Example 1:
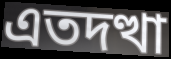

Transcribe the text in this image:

এতদত্থা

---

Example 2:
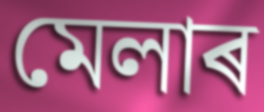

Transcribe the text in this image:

মেলাৰ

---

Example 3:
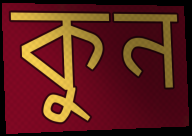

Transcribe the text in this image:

কুন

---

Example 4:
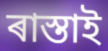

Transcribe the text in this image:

ৰাস্তাই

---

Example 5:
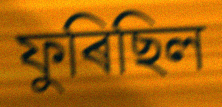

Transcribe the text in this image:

ফুৰিছিল